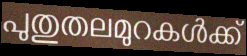
പുതുതലമുറകൾക്ക്